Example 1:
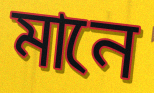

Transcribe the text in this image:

মানে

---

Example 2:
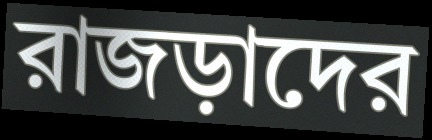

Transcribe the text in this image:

রাজড়াদের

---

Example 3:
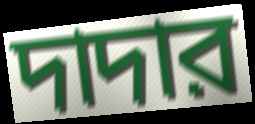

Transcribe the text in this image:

দাদার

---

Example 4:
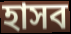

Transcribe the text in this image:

হাসব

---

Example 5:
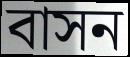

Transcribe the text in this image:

বাসন